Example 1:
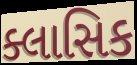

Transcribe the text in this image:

ક્લાસિક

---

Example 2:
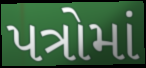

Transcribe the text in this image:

પત્રોમાં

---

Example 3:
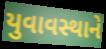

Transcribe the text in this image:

યુવાવસ્થાને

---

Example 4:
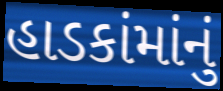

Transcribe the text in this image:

હાડકાંમાંનું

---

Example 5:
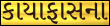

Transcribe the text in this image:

કાયાફાસના